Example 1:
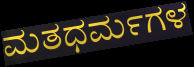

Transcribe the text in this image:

ಮತಧರ್ಮಗಳ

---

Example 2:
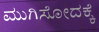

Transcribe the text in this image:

ಮುಗಿಸೋದಕ್ಕೆ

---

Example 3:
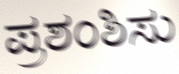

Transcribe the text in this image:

ಪ್ರಶಂಶಿಸು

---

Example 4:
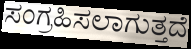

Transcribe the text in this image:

ಸಂಗ್ರಹಿಸಲಾಗುತ್ತದೆ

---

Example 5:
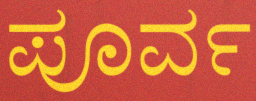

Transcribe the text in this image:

ಪೂರ್ವ